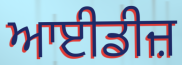
ਆਈਡੀਜ਼